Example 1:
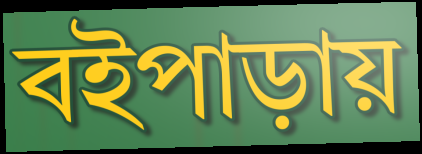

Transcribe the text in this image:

বইপাড়ায়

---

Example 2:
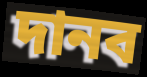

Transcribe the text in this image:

দানব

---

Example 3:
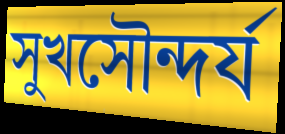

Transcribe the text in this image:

সুখসৌন্দর্য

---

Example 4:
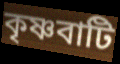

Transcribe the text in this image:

কৃষ্ণবাটি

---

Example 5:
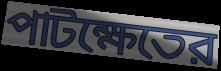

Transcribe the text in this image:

পাটক্ষেতের